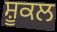
ਸ਼ੂਕਲ